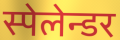
स्पेलेन्डर